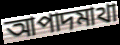
আপাদমাথা